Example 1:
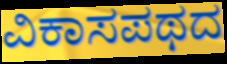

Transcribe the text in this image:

ವಿಕಾಸಪಥದ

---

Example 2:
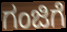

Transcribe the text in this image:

ಗಂಜಿಗೆ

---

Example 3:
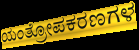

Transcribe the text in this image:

ಯಂತ್ರೋಪಕರಣಗಳ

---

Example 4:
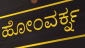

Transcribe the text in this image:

ಹೋಂವರ್ಕ್ನ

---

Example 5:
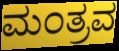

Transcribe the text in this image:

ಮಂತ್ರವ